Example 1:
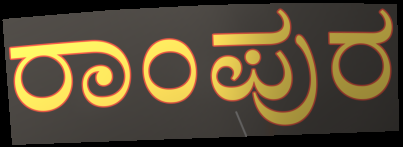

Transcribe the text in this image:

ರಾಂಪುರ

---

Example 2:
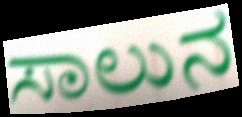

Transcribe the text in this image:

ಸಾಲುನ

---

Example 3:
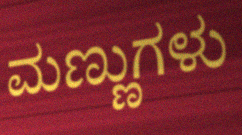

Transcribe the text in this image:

ಮಣ್ಣುಗಳು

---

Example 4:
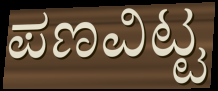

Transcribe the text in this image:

ಪಣವಿಟ್ಟ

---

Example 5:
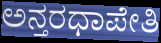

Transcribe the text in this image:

ಅನ್ತರಧಾಪೇತಿ